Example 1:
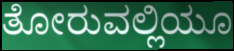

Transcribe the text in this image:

ತೋರುವಲ್ಲಿಯೂ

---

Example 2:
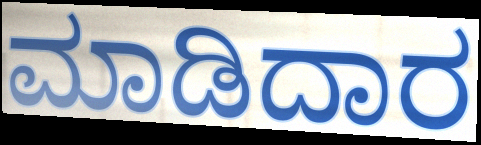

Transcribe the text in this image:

ಮಾಡಿದಾರ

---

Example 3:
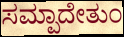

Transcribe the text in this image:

ಸಮ್ಪಾದೇತುಂ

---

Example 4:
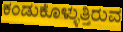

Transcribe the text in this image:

ಕಂಡುಕೊಳ್ಳುತ್ತಿರುವ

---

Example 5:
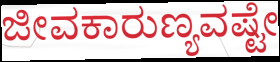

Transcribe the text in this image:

ಜೀವಕಾರುಣ್ಯವಷ್ಟೇ